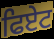
ਫਿਏਟ